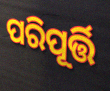
ପରିପୂର୍ତ୍ତି